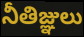
నీతిజ్ఞులు